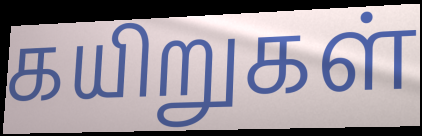
கயிறுகள்